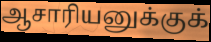
ஆசாரியனுக்குக்